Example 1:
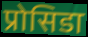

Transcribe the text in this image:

प्रोसिडा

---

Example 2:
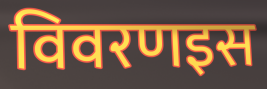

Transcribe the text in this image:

विवरणइस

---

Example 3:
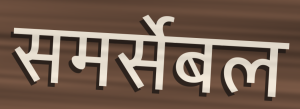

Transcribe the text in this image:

समर्सेबल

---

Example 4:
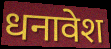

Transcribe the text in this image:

धनावेश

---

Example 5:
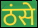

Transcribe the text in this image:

ठंसे